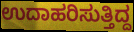
ಉದಾಹರಿಸುತ್ತಿದ್ದ